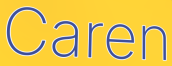
Caren